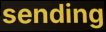
sending